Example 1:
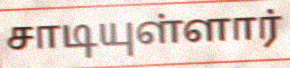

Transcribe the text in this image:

சாடியுள்ளார்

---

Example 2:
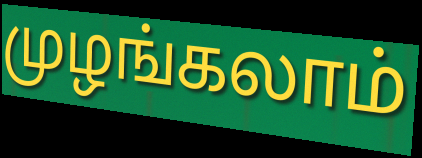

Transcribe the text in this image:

முழங்கலாம்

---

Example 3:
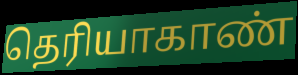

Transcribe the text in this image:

தெரியாகாண்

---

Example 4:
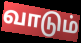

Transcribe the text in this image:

வாடும்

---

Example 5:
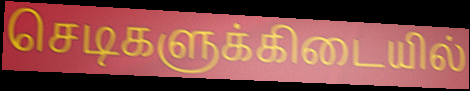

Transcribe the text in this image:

செடிகளுக்கிடையில்